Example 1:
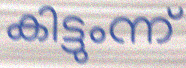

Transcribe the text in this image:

കിട്ടുംന്ന്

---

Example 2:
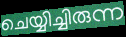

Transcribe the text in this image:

ചെയ്യിച്ചിരുന്ന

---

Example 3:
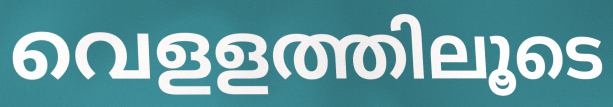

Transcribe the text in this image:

വെളളത്തിലൂടെ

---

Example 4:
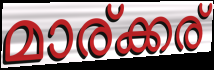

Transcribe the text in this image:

മാര്ക്കര്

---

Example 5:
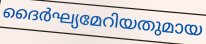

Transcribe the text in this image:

ദൈർഘ്യമേറിയതുമായ